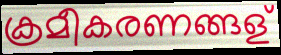
ക്രമീകരണങ്ങള്